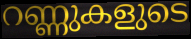
റണ്ണുകളുടെ